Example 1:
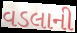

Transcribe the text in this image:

વડલાની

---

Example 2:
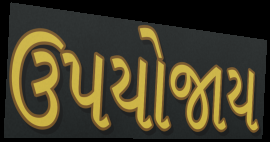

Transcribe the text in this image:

ઉપયોજાય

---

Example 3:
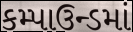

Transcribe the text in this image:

કમ્પાઉન્ડમાં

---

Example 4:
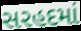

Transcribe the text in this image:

સરહદમાં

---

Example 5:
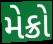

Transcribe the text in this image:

મેક્રો